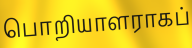
பொறியாளராகப்